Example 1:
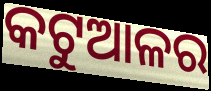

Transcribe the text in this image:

କଟୁଆଳର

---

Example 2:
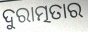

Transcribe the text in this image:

ଦୁରାତ୍ମତାର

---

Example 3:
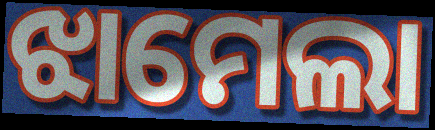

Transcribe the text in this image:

ଝାମେଲା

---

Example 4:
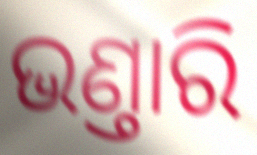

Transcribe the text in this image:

ଭଣ୍ତାରି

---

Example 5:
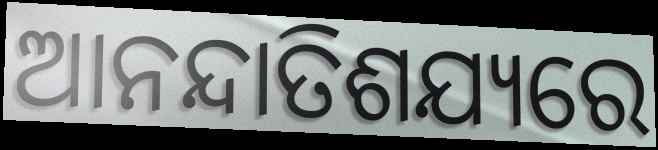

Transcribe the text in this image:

ଆନନ୍ଦାତିଶଯ୍ୟରେ